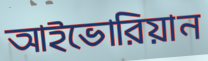
আইভোরিয়ান